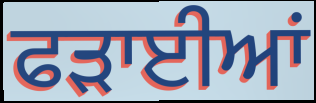
ਫੜਾਈਆਂ